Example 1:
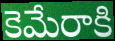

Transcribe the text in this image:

కెమేరాకి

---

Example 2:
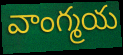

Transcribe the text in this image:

వాంగ్మయ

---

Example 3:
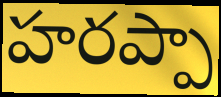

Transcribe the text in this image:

హరప్పా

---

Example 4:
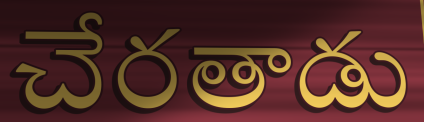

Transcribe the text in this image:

చేరతాడు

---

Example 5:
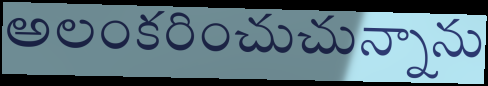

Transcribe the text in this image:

అలంకరించుచున్నాను